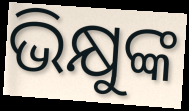
ଭିକ୍ଷୁଙ୍କ